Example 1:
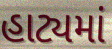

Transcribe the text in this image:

હાટ્યમાં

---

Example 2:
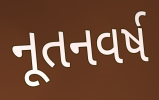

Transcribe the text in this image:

નૂતનવર્ષ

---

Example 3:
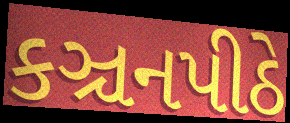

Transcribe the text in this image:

કઞ્ચનપીઠે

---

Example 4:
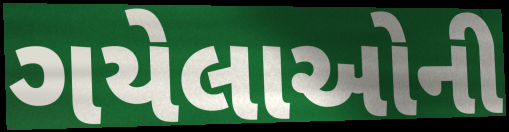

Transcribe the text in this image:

ગયેલાઓની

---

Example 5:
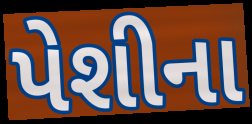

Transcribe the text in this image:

પેશીના